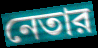
নেতার